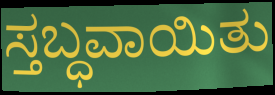
ಸ್ತಬ್ಧವಾಯಿತು